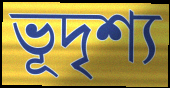
ভূদৃশ্য